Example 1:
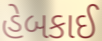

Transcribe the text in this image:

હેબકાઈ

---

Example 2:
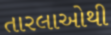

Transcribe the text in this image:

તારલાઓથી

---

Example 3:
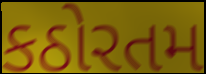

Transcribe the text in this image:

કઠોરતમ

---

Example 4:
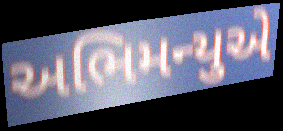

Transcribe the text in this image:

અભિમન્યુએ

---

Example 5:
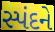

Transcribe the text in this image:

સ્પંદને